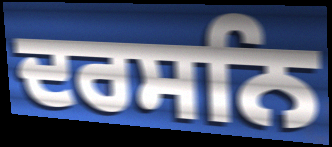
ਦਰਸਨਿ